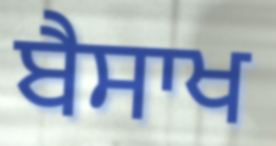
ਬੈਸਾਖ